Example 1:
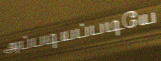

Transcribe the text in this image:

அப்படியப்படியே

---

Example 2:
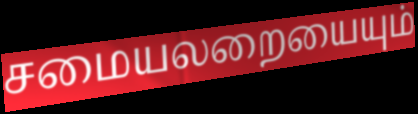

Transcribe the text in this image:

சமையலறையையும்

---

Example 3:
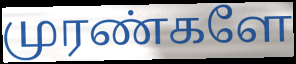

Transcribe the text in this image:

முரண்களே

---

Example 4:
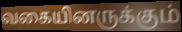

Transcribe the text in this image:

வகையினருக்கும்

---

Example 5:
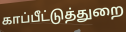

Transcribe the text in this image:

காப்பீட்டுத்துறை